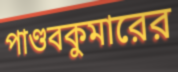
পাণ্ডবকুমারের